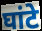
घांटे